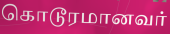
கொடூரமானவர்